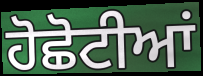
ਹੋਛੋਟੀਆਂ